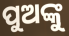
ପୁଅଙ୍କୁ